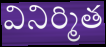
వినిర్మిత